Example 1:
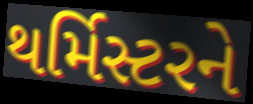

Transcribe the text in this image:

થર્મિસ્ટરને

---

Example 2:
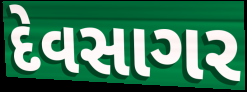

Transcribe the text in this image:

દેવસાગર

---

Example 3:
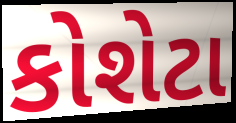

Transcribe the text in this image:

કોશેટા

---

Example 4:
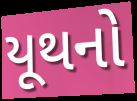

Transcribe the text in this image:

યૂથનો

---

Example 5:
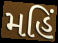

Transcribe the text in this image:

મહિં